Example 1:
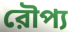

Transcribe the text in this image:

রৌপ্য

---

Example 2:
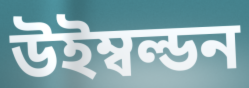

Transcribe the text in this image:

উইম্বল্ডন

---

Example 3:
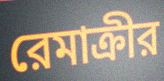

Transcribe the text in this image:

রেমাক্রীর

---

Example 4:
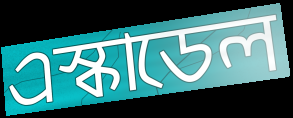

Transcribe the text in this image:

এস্কাডেল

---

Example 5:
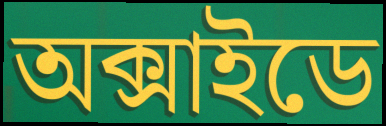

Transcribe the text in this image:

অক্সাইডে